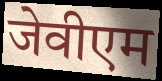
जेवीएम